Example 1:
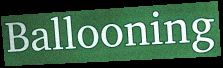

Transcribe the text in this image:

Ballooning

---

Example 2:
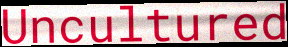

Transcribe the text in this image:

Uncultured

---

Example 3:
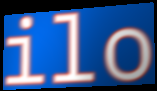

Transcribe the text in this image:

ilo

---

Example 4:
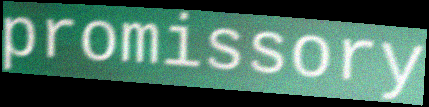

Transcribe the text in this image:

promissory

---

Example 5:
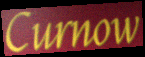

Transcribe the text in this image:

Curnow